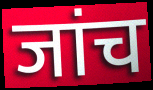
जांच